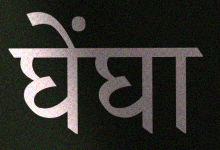
घेंघा